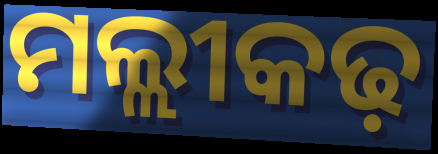
ମଲ୍ଲୀକଢ଼